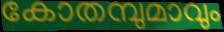
കോതമ്പുമാവും